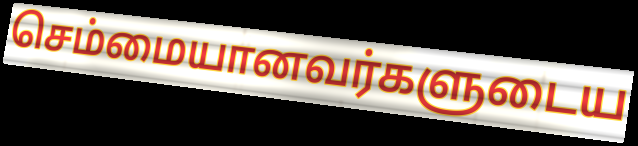
செம்மையானவர்களுடைய